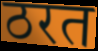
ठरत